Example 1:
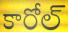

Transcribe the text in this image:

కారోల్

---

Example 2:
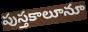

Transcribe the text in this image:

పుస్తకాలూనూ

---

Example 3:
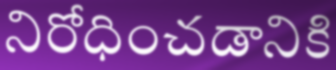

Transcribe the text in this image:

నిరోధించడానికి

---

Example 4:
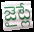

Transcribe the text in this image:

జైట్లే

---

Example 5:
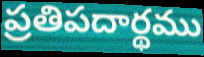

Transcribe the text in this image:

ప్రతిపదార్థము